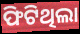
ଫିଟିଥିଲା